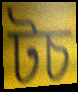
টচ